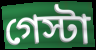
গেস্টা